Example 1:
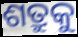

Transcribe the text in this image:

ଶତ୍ରୁକୁ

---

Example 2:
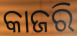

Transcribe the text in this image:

କାଜରି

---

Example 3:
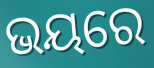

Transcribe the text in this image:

ଭୟରେ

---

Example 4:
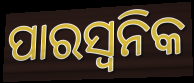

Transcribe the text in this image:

ପାରସ୍ୱନିକ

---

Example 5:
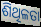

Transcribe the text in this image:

ଶିଥିଳତା